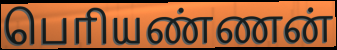
பெரியண்ணன்